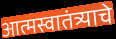
आत्मस्वातंत्र्याचे